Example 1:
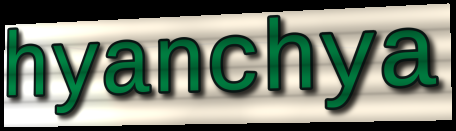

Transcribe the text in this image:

hyanchya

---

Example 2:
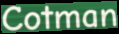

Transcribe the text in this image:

Cotman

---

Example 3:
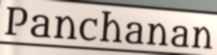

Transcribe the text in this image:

Panchanan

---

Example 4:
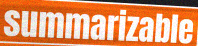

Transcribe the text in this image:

summarizable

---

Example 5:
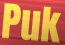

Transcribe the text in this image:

Puk